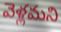
వెళ్లమని